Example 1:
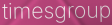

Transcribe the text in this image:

timesgroup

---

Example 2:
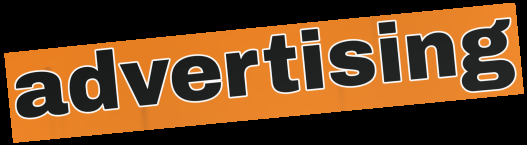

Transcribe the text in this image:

advertising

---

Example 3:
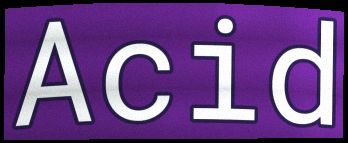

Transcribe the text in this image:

Acid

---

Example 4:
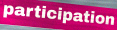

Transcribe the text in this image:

participation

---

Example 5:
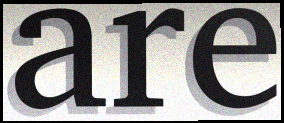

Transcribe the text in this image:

are